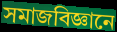
সমাজবিজ্ঞানে